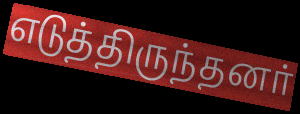
எடுத்திருந்தனர்